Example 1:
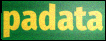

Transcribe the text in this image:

padata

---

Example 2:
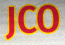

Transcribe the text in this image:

JCO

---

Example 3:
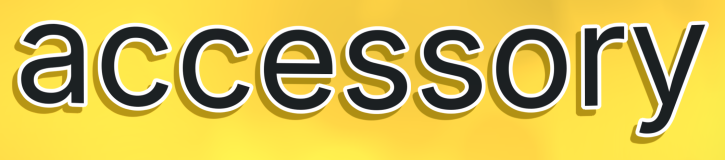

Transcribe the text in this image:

accessory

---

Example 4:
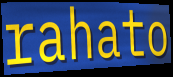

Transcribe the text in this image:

rahato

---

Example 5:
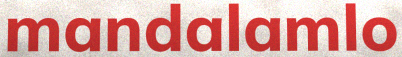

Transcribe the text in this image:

mandalamlo